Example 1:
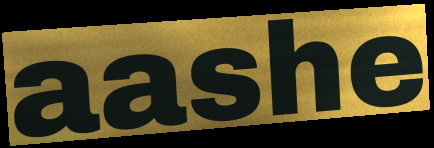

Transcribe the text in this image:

aashe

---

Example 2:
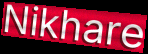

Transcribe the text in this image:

Nikhare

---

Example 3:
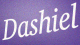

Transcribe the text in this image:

Dashiel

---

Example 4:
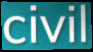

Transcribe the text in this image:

civil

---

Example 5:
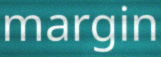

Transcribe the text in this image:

margin